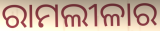
ରାମଲୀଳାର